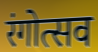
रंगोत्सव